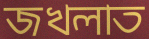
জখলাত